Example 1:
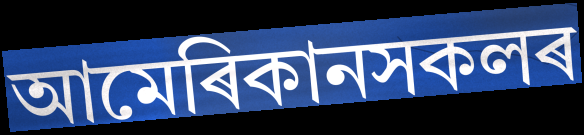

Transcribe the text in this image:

আমেৰিকানসকলৰ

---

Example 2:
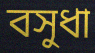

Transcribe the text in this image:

বসুধা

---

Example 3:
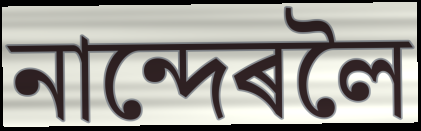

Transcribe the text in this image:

নান্দেৰলৈ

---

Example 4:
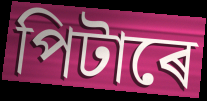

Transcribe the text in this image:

পিটাৰে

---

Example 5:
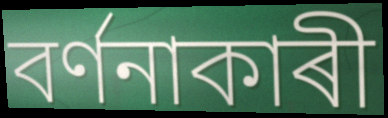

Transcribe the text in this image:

বৰ্ণনাকাৰী